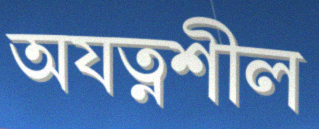
অযত্নশীল